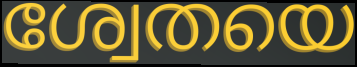
ശ്വേതയെ